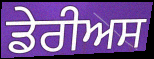
ਡੇਰੀਅਸ